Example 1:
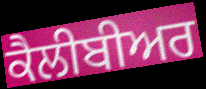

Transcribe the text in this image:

ਕੈਲੀਬੀਅਰ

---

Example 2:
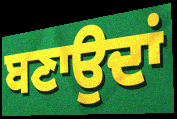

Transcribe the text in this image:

ਬਣਾਉਦਾਂ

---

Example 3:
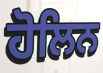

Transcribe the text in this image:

ਹੋਲਿਨ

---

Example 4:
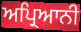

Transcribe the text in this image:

ਅਪ੍ਰਿਆਨੀ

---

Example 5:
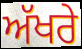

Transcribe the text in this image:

ਅੱਖਰੇ